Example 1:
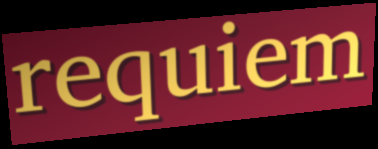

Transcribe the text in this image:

requiem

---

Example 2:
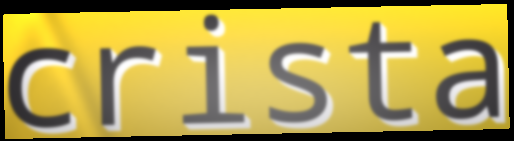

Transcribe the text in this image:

crista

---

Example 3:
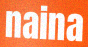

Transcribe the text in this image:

naina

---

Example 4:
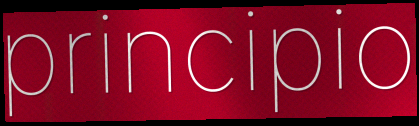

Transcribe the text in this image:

principio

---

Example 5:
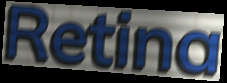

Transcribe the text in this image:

Retina